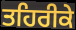
ਤਹਿਰੀਕੇ